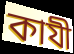
কাযী